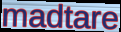
madtare